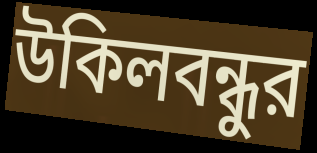
উকিলবন্ধুর